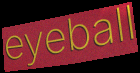
eyeball